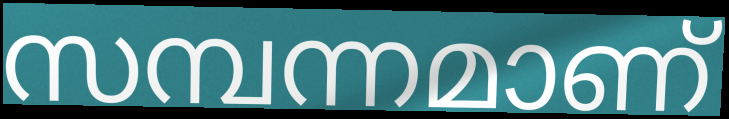
സമ്പന്നമാണ്